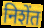
निशेंत